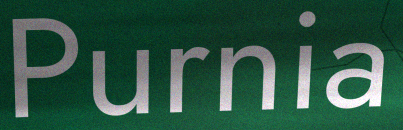
Purnia